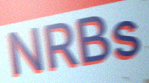
NRBs